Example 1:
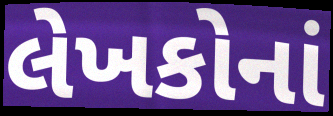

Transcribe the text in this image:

લેખકોનાં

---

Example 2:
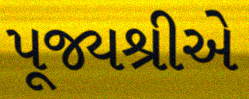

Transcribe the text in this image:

પૂજ્યશ્રીએ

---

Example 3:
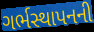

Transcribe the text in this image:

ગર્ભસ્થાપનની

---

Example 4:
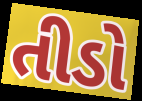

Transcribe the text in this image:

તીડો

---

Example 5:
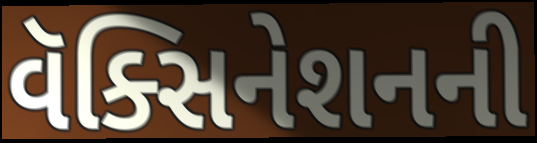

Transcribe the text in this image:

વૅક્સિનેશનની